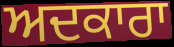
ਅਦਕਾਰਾ